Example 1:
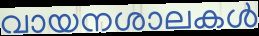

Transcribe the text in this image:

വായനശാലകൾ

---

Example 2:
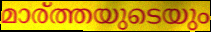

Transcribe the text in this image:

മാര്ത്തയുടെയും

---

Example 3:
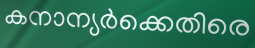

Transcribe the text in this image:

കനാന്യർക്കെതിരെ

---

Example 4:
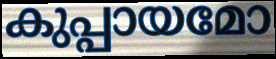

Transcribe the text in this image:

കുപ്പായമോ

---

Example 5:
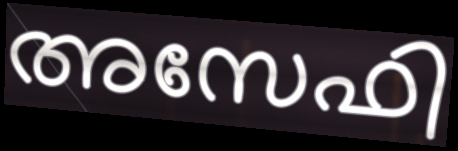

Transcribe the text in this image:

അസേഫി